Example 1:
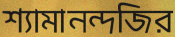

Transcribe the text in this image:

শ্যামানন্দজির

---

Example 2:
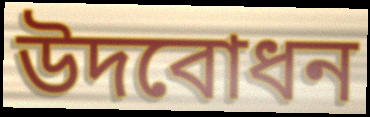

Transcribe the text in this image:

উদবোধন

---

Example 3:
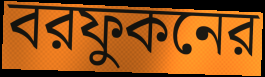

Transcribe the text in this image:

বরফুকনের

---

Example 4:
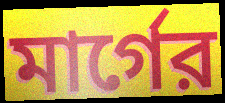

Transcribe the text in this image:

মার্গের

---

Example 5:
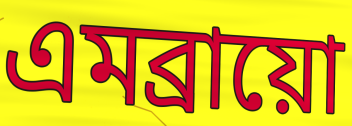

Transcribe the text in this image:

এমব্রায়ো